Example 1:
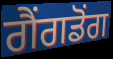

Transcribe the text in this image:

ਗੈਂਗਡੋਂਗ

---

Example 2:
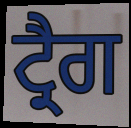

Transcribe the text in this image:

ਟ੍ਰੈਗ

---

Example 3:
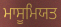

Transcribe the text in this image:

ਮਾਸੂਮਿਯਤ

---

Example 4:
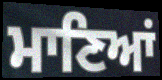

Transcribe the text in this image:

ਮਾਣਿਆਂ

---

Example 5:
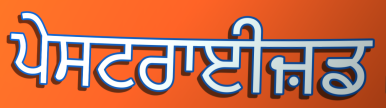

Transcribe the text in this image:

ਪੇਸਟਰਾਈਜ਼ਡ